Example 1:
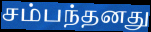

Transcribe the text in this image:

சம்பந்தனது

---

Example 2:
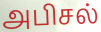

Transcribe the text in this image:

அபிசல்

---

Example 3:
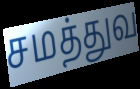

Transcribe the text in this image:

சமத்துவ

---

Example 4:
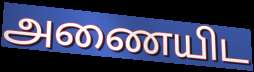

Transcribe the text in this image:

அணையிட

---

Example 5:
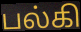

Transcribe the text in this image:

பல்கி